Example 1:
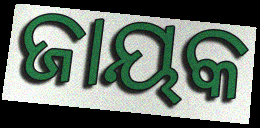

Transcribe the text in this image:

ଜାୟକ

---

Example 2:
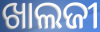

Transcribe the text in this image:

ଖାଲଜୀ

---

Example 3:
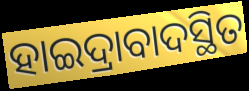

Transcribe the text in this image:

ହାଇଦ୍ରାବାଦସ୍ଥିତ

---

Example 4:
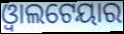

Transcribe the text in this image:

ଓ୍ୱାଲଟେୟାର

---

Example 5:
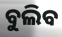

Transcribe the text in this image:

ବୁଲିବ